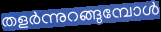
തളർന്നുറങ്ങുമ്പോൾ